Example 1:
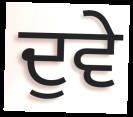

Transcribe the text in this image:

ਦੁਵੇ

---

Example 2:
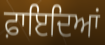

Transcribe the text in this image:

ਫ਼ਾਇਦਿਆਂ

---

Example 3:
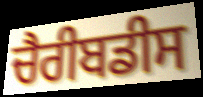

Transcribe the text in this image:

ਚੈਰੀਬਡੀਸ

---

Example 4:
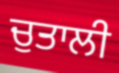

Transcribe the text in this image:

ਚੁਤਾਲੀ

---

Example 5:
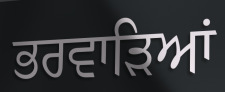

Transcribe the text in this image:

ਭਰਵਾੜਿਆਂ